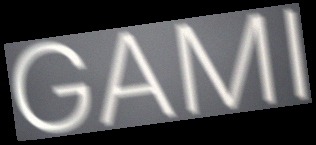
GAMI